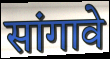
सांगावे